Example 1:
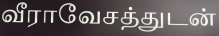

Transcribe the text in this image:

வீராவேசத்துடன்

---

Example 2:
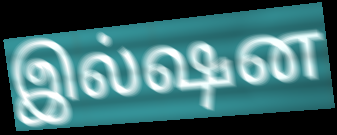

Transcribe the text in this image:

இல்ஷன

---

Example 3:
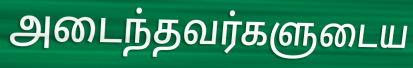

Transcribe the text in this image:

அடைந்தவர்களுடைய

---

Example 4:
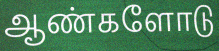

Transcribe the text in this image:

ஆண்களோடு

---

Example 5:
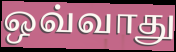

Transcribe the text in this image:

ஒவ்வாது